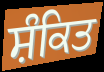
ਸ਼ੰਕਿਤ